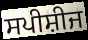
ਸਪੀਸ਼ੀਜ